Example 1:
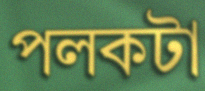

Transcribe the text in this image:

পলকটা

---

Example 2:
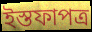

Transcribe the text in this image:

ইস্তফাপত্র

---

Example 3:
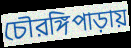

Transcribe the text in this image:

চৌরঙ্গিপাড়ায়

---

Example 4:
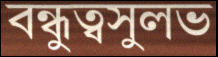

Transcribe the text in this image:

বন্ধুত্বসুলভ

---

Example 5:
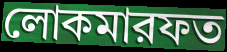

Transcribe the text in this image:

লোকমারফত